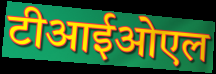
टीआईओएल